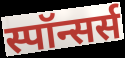
स्पॉन्सर्स